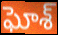
ఘోశ్